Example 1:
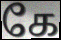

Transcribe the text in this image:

கே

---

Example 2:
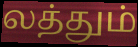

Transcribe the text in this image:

லத்தும்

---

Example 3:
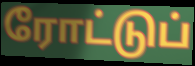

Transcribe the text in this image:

ரோட்டுப்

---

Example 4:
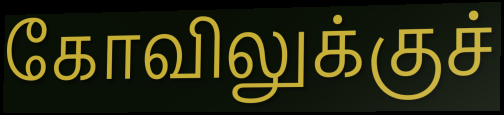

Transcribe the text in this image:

கோவிலுக்குச்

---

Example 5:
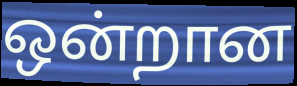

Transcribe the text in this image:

ஒன்றான